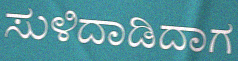
ಸುಳಿದಾಡಿದಾಗ